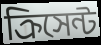
ক্রিসেন্ট